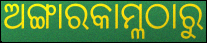
ଅଙ୍ଗାରକାମ୍ଳଠାରୁ